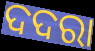
ଦଦରା